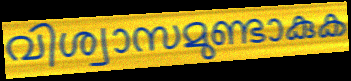
വിശ്വാസമുണ്ടാകുക